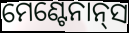
ମେଣ୍ଟେନାନ୍‌ସ